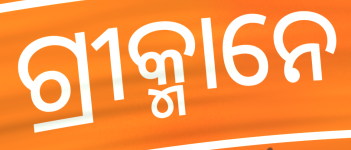
ଗ୍ରୀକ୍ମାନେ